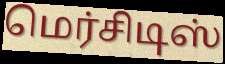
மெர்சிடிஸ்